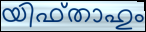
യിഫ്താഹും